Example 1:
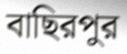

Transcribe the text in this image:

বাছিরপুর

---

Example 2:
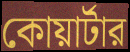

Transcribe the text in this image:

কোয়ার্টার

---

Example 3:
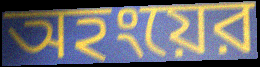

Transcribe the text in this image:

অহংয়ের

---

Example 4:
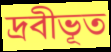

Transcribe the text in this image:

দ্রবীভূত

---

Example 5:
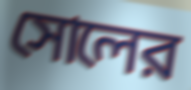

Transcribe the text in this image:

সোলের